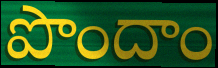
పొందాం